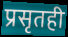
प्रसृतही